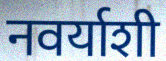
नवर्याशी